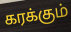
கரக்கும்